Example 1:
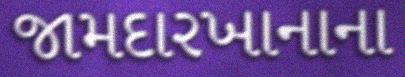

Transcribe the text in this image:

જામદારખાનાના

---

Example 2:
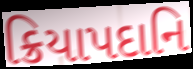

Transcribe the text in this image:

ક્રિયાપદાનિ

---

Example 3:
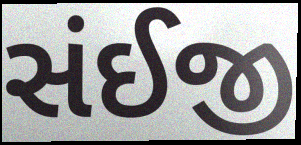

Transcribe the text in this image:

સંઈજી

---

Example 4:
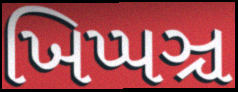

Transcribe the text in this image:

ખિપ્પઞ્ચ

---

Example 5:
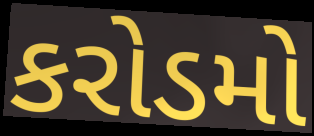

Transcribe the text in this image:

કરોડમો